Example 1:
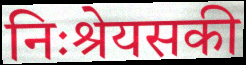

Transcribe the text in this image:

निःश्रेयसकी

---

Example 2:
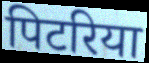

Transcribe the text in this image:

पिटरिया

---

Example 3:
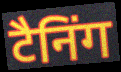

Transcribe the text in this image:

टैनिंग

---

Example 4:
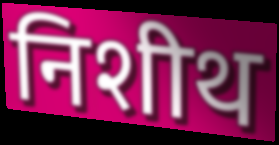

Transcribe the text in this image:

निशीथ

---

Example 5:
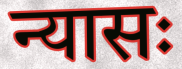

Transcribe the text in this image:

न्यासः